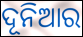
ଦୂନିଆର